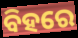
ବିହରେ